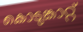
കൊടുങ്കാറ്റ്